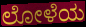
ಲೋಳೆಯ